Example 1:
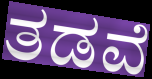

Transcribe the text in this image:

ತಡವೆ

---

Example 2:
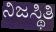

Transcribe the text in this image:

ನಿಜಸ್ಥಿತಿ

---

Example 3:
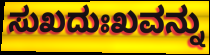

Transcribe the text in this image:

ಸುಖದುಃಖವನ್ನು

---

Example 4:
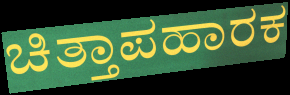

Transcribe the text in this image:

ಚಿತ್ತಾಪಹಾರಕ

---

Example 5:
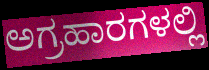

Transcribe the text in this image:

ಅಗ್ರಹಾರಗಳಲ್ಲಿ